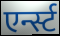
एर्न्स्ट